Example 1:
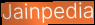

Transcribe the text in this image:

Jainpedia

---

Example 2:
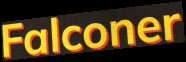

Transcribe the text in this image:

Falconer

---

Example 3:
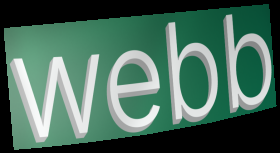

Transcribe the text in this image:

webb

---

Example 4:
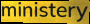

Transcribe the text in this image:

ministery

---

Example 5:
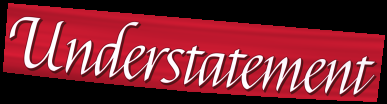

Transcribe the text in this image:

Understatement